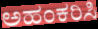
ಅಹಂಕರಿಸಿ